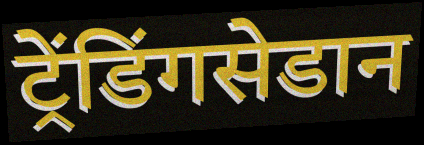
ट्रेंडिंगसेडान